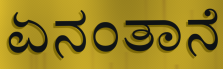
ಏನಂತಾನೆ